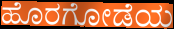
ಹೊರಗೋಡೆಯ